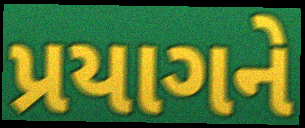
પ્રયાગને